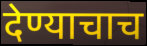
देण्याचाच